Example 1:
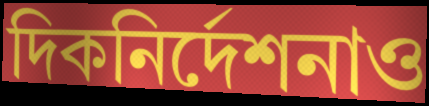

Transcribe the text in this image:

দিকনির্দেশনাও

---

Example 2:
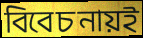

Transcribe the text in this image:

বিবেচনায়ই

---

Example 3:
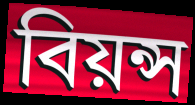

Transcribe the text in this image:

বিয়ন্স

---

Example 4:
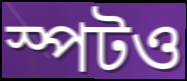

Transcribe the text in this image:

স্পটও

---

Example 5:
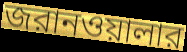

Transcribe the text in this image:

জরানওয়ালার